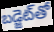
బడ్జెట్‌తో